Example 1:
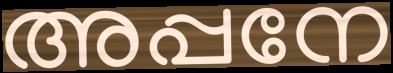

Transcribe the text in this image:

അപ്പനേ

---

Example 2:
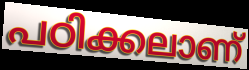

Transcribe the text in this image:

പഠിക്കലാണ്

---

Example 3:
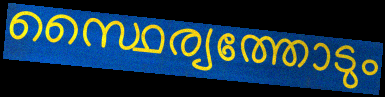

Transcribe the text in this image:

സ്ഥൈര്യത്തോടും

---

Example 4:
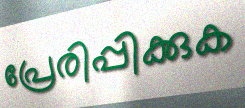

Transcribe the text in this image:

പ്രേരിപ്പിക്കുക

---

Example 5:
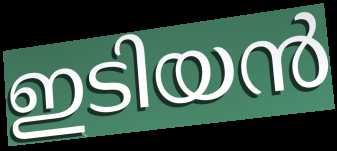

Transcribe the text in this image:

ഇടിയൻ